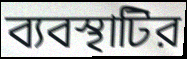
ব্যবস্থাটির